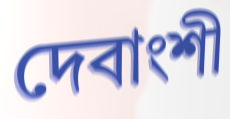
দেবাংশী